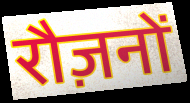
रौज़नों